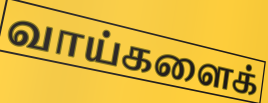
வாய்களைக்